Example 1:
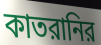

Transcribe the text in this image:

কাতরানির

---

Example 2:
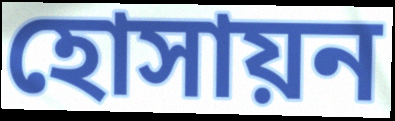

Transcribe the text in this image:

হোসায়ন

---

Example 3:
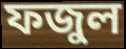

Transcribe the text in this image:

ফজুল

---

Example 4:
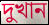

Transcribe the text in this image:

দুখান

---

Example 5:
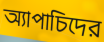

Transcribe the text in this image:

অ্যাপাচিদের